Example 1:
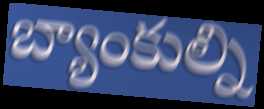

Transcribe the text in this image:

బ్యాంకుల్ని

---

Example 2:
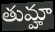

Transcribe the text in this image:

తుమ్హా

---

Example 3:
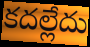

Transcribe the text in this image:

కదల్లేదు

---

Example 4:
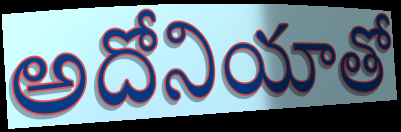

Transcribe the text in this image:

అదోనియాతో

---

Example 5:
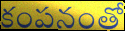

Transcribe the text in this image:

కంపనంతో